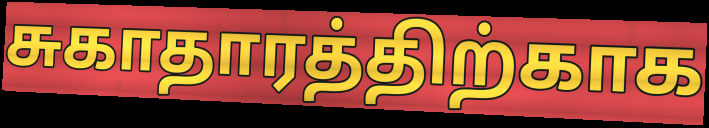
சுகாதாரத்திற்காக